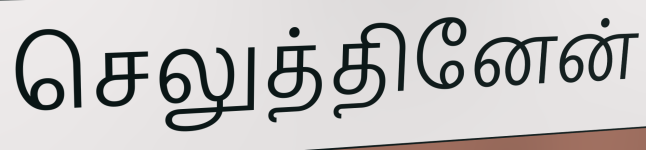
செலுத்தினேன்